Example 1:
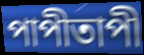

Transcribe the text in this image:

পাপীতাপী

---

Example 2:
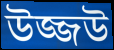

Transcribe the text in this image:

উজ্জউ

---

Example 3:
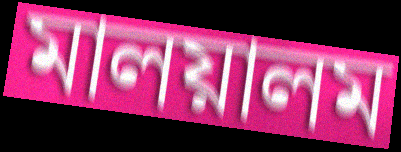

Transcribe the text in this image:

মালয়ালম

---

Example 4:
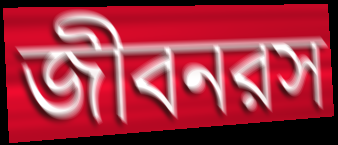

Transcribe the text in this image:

জীবনরস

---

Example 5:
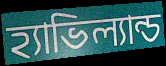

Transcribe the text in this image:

হ্যাভিল্যান্ড